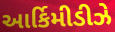
આર્કિમીડીઝે